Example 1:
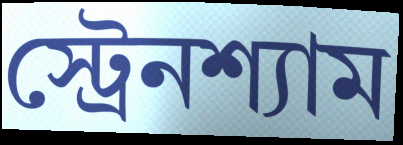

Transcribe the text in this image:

স্ট্রেনশ্যাম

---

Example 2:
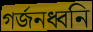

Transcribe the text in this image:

গর্জনধ্বনি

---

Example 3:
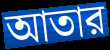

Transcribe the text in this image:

আতার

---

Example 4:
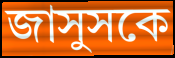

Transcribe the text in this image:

জাসুসকে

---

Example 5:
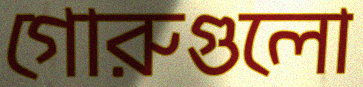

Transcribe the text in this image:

গোরুগুলো